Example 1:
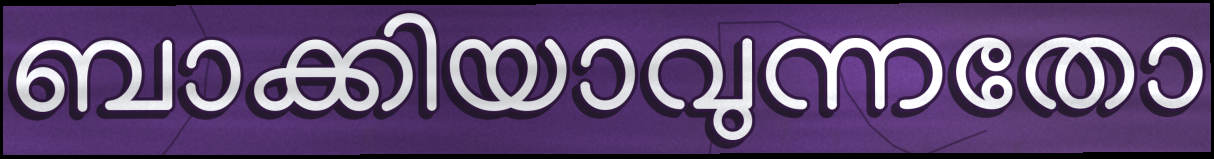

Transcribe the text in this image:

ബാക്കിയാവുന്നതോ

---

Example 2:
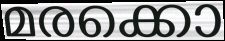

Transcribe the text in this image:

മരക്കൊ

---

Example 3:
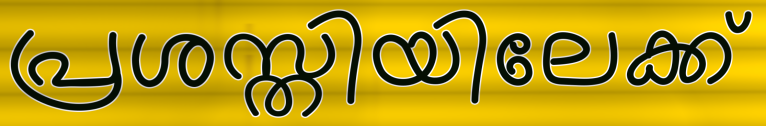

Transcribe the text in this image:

പ്രശസ്തിയിലേക്ക്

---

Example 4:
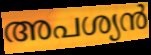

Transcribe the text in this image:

അപശ്യൻ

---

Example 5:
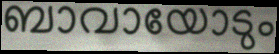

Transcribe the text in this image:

ബാവായോടും